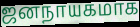
ஜனநாயகமாக